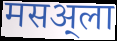
मसअ्ला